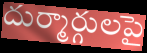
దుర్మార్గులపై